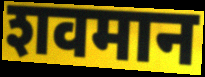
शवमान